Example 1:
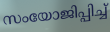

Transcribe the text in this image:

സംയോജിപ്പിച്ച്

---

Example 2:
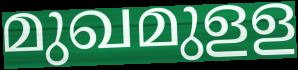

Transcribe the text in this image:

മുഖമുളള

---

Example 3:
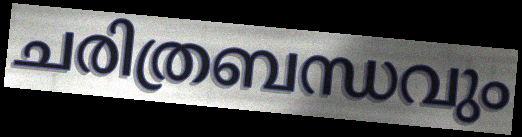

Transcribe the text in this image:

ചരിത്രബന്ധവും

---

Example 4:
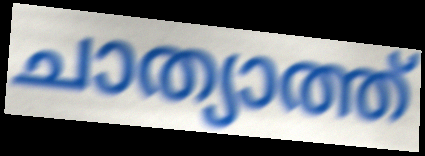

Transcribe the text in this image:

ചാത്യാത്ത്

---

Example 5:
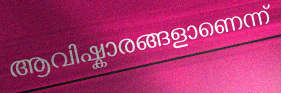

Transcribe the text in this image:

ആവിഷ്കാരങ്ങളാണെന്ന്